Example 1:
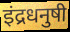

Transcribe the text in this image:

इंद्रधनुषी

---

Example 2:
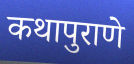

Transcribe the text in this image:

कथापुराणे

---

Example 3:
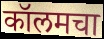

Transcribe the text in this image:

कॉलमचा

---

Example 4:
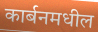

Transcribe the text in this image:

कार्बनमधील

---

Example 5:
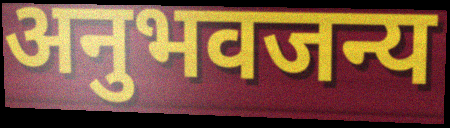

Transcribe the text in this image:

अनुभवजन्य